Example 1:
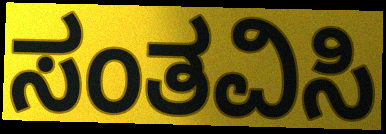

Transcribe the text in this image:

ಸಂತವಿಸಿ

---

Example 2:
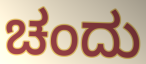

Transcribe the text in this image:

ಚಂದು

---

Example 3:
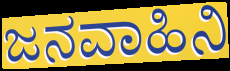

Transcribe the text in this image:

ಜನವಾಹಿನಿ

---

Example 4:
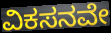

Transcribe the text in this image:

ವಿಕಸನವೇ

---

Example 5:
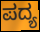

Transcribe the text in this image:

ಪದ್ಯ